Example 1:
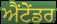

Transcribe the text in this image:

ਐਂਟੇਂਡਰ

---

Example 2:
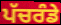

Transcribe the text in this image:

ਪੱਚਰੰਡੇ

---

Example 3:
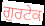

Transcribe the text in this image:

ਗੁਰਟੇਕ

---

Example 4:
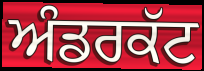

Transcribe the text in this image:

ਅੰਡਰਕੱਟ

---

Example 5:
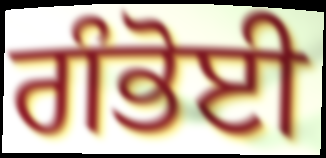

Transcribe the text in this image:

ਗੰਭੋਈ